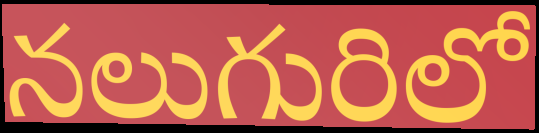
నలుగురిలో